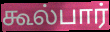
கூல்பார்